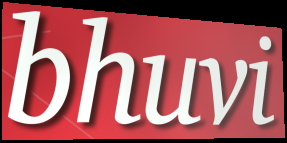
bhuvi